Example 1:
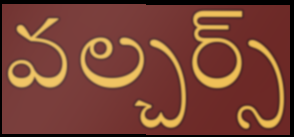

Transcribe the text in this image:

వల్చర్స్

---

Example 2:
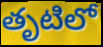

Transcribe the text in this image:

తృటిలో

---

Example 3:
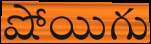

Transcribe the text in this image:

షోయిగు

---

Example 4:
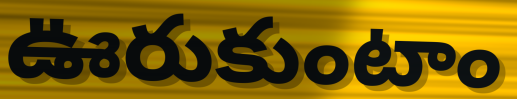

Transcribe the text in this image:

ఊరుకుంటాం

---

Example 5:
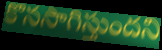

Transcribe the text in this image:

కొనసాగిస్తుందని